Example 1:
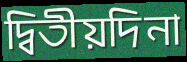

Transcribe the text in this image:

দ্বিতীয়দিনা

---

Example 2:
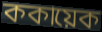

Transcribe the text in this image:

ককায়েক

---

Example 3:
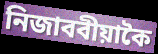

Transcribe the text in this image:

নিজাববীয়াকৈ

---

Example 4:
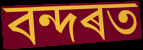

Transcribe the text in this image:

বন্দৰত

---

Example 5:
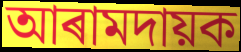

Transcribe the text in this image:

আৰামদায়ক